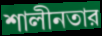
শালীনতার